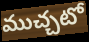
ముచ్చటో